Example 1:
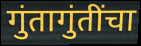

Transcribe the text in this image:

गुंतागुंतींचा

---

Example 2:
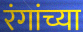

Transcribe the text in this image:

रंगांच्या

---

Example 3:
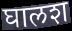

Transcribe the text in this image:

घालश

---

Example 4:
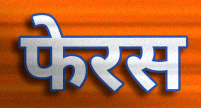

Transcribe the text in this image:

फेरस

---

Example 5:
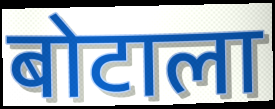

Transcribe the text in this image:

बोटाला